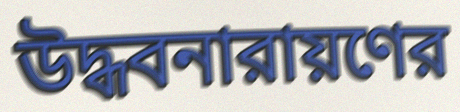
উদ্ধবনারায়ণের